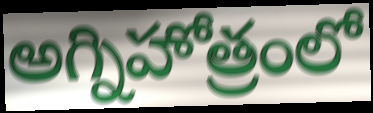
అగ్నిహోత్రంలో